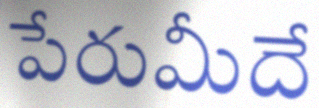
పేరుమీదే